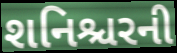
શનિશ્ચરની